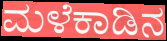
ಮಳೆಕಾಡಿನ